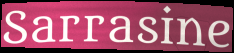
Sarrasine